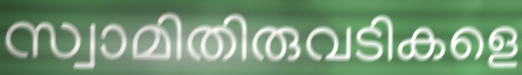
സ്വാമിതിരുവടികളെ